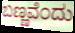
ಬಣ್ಣವೆಂದು